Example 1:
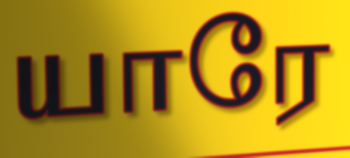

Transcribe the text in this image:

யாரே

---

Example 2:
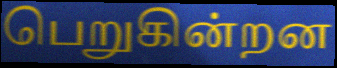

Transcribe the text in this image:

பெறுகின்றன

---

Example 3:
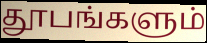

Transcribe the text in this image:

தூபங்களும்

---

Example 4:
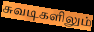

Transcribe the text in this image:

சுவடிகளிலும்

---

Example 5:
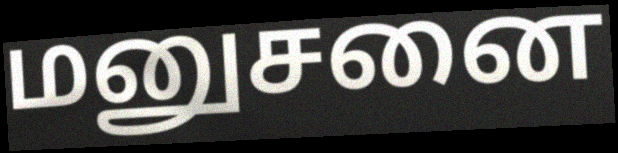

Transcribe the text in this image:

மனுசனை